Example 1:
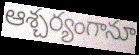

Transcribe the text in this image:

ఆశ్చర్యంగానూ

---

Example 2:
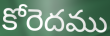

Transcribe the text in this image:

కోరెదము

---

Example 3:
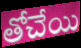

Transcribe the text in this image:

తోచేయి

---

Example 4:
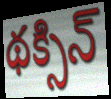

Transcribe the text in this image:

థక్సిన్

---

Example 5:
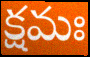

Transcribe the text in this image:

క్షమః